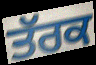
ਤੱਰਕ